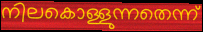
നിലകൊള്ളുന്നതെന്ന്